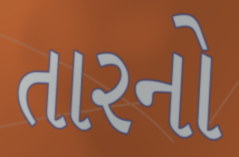
તારનો